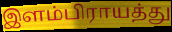
இளம்பிராயத்து